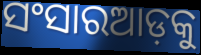
ସଂସାରଆଡ଼କୁ